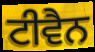
ਟੀਵੈਨ